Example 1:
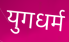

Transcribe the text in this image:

युगधर्म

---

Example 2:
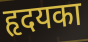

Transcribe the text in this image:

हृदयका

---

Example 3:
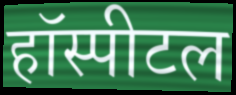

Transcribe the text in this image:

हॉस्पीटल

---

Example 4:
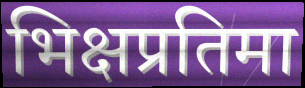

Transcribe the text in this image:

भिक्षप्रतिमा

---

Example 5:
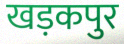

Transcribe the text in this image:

खड़कपुर